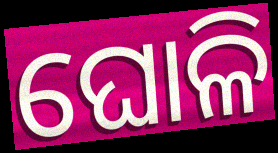
ଘୋଳି